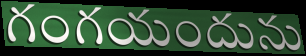
గంగయందును